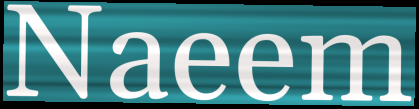
Naeem